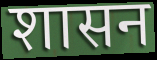
शासन